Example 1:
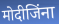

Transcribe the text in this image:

मोदीजिंना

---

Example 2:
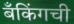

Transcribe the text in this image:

बँकिंगची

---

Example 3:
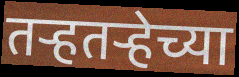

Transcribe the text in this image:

तऱ्हतऱ्हेच्या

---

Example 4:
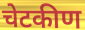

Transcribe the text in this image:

चेटकीण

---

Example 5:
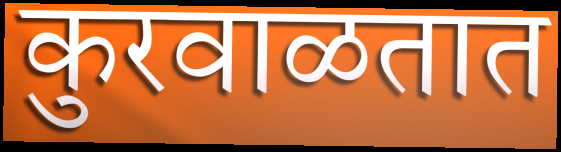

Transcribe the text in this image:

कुरवाळतात